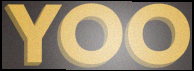
YOO